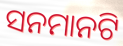
ସନମାନଟି